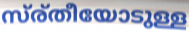
സ്ര്തീയോടുള്ള